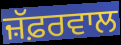
ਜ਼ੱਫ਼ਰਵਾਲ